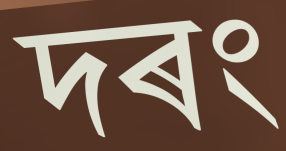
দৰং